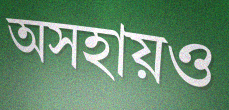
অসহায়ও